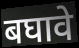
बघावे